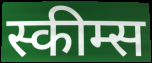
स्कीम्स